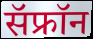
सॅफ्रॉन